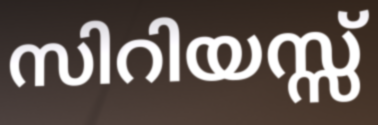
സിറിയസ്സ്